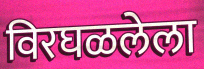
विरघळलेला